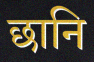
छानि